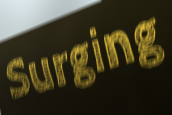
Surging